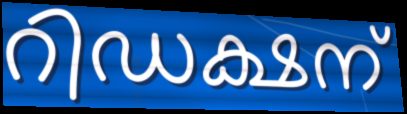
റിഡക്ഷന്